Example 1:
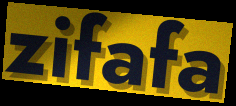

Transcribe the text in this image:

zifafa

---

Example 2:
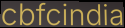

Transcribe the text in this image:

cbfcindia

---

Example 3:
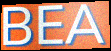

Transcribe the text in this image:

BEA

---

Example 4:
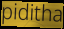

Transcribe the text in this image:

piditha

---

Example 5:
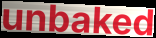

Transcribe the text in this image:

unbaked